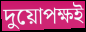
দুয়োপক্ষই